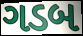
ગડબ